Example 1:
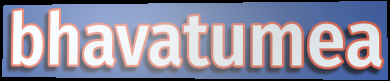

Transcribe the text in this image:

bhavatumea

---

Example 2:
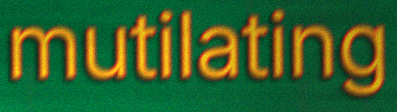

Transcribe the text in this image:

mutilating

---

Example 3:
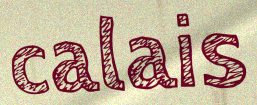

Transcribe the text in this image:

calais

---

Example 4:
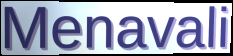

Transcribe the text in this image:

Menavali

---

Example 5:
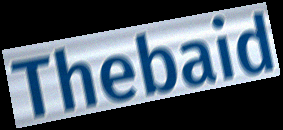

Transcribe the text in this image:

Thebaid